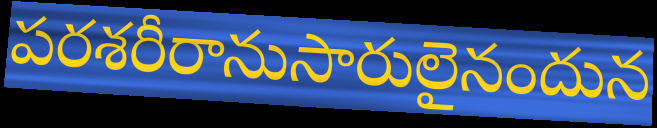
పరశరీరానుసారులైనందున